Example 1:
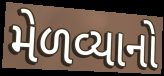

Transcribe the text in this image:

મેળવ્યાનો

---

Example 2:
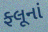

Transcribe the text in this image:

ફ્લૂનાં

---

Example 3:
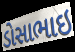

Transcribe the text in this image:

ડોસાભાઇ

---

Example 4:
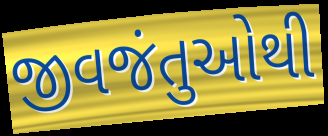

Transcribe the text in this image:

જીવજંતુઓથી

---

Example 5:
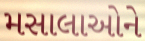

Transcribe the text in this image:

મસાલાઓને